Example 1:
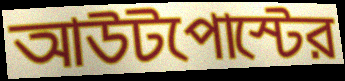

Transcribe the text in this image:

আউটপোস্টের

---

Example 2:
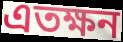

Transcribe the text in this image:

এতক্ষন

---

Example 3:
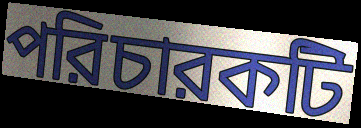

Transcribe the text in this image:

পরিচারকটি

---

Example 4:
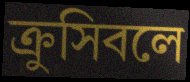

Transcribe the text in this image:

ক্রুসিবলে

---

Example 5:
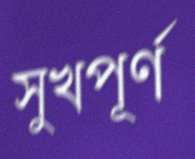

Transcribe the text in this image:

সুখপূর্ণ